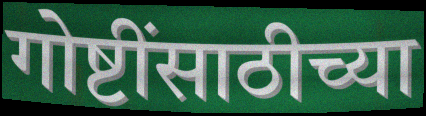
गोष्टींसाठीच्या